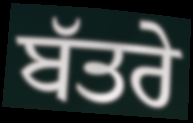
ਬੱਤਰੇ